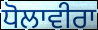
ਧੋਲਾਵੀਰਾ